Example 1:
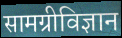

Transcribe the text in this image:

सामग्रीविज्ञान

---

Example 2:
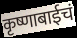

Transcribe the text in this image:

कृष्णाबाईचं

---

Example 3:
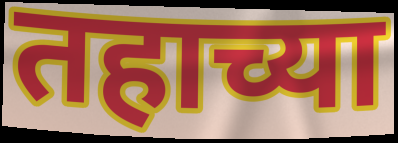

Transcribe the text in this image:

तहाच्या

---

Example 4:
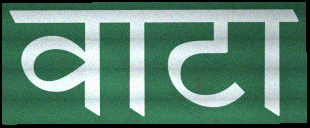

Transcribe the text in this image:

वाटा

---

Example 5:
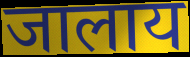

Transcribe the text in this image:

जालाय